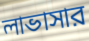
লাভাসার